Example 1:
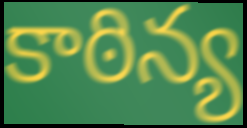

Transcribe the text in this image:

కాఠిన్య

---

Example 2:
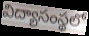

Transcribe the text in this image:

విద్యాసంస్థలో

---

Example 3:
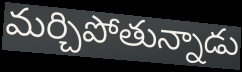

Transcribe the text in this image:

మర్చిపోతున్నాడు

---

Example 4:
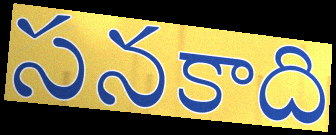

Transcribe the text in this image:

సనకాది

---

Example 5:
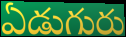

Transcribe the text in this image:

ఏడుగురు